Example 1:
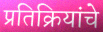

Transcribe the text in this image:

प्रतिक्रियांचे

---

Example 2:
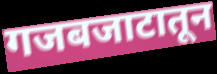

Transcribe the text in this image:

गजबजाटातून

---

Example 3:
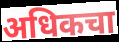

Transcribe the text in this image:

अधिकचा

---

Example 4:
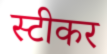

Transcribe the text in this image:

स्टीकर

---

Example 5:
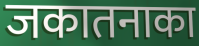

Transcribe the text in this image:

जकातनाका